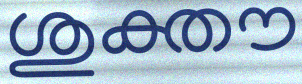
ശുക്തൗ